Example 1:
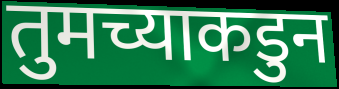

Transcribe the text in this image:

तुमच्याकडुन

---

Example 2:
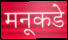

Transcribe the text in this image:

मनूकडे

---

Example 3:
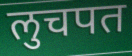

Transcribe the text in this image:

लुचपत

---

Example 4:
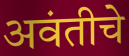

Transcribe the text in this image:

अवंतीचे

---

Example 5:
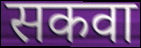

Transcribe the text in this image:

सकवा